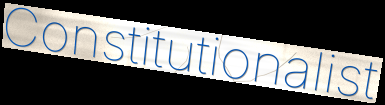
Constitutionalist